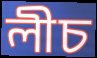
লীচ